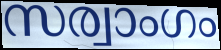
സര്വാംഗം